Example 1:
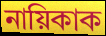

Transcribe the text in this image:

নায়িকাক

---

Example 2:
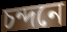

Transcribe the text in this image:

চন্দনে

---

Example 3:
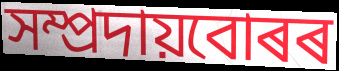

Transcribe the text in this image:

সম্প্ৰদায়বোৰৰ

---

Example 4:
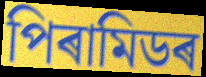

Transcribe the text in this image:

পিৰামিডৰ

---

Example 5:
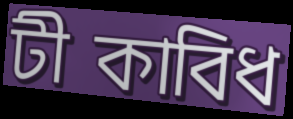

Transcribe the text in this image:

টীকাবিধ